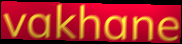
vakhane